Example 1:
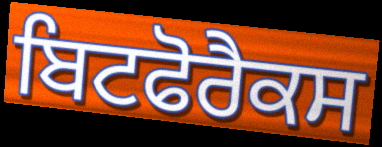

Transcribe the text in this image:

ਬਿਟਫੋਰੈਕਸ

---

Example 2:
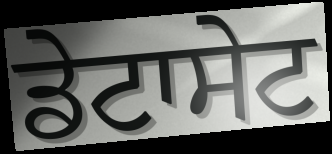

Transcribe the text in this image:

ਡੇਟਾਸੇਟ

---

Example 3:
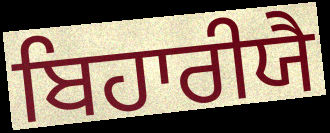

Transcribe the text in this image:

ਬਿਹਾਰੀਯੈ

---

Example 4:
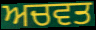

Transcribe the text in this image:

ਅਚਵਤ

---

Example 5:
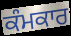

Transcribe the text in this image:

ਕੰਮਕਾਰ